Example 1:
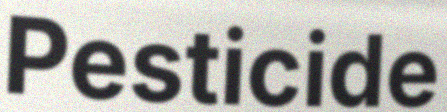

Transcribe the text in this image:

Pesticide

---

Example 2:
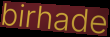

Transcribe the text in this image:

birhade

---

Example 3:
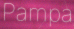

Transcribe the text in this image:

Pampa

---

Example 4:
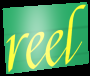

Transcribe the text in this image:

reel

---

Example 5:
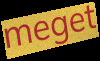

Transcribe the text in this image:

meget